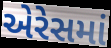
એરેસમાં